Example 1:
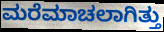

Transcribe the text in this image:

ಮರೆಮಾಚಲಾಗಿತ್ತು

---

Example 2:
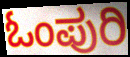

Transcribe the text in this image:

ಓಂಪುರಿ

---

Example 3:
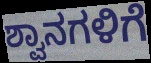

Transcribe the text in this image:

ಶ್ವಾನಗಳಿಗೆ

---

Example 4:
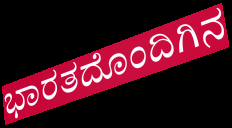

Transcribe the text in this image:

ಭಾರತದೊಂದಿಗಿನ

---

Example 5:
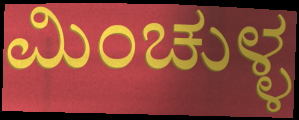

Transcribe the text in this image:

ಮಿಂಚುಳ್ಳ